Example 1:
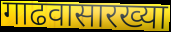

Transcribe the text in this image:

गाढवासारख्या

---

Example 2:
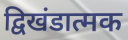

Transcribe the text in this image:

द्विखंडात्मक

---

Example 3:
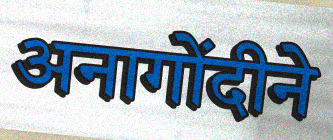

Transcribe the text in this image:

अनागोंदीने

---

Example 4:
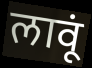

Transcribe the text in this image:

लावूं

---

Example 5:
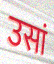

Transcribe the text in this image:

उसां